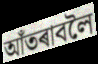
আঁতৰাবলৈ